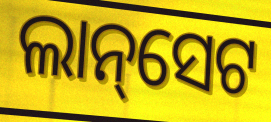
ଲାନ୍‌ସେଟ